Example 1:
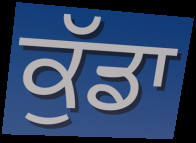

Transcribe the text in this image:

ਕੁੱਡਾ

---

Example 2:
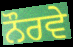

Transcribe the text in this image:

ਨੌਰਵੇ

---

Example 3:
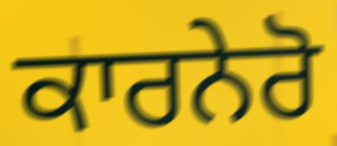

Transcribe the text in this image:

ਕਾਰਨੇਰੋ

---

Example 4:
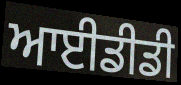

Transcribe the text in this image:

ਆਈਡੀਡੀ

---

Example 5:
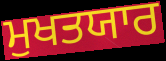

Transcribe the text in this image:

ਮੁਖਤਯਾਰ